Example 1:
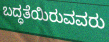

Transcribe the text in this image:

ಬದ್ಧತೆಯಿರುವವರು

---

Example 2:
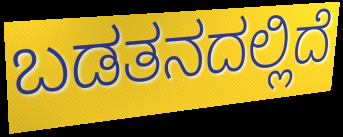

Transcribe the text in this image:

ಬಡತನದಲ್ಲಿದೆ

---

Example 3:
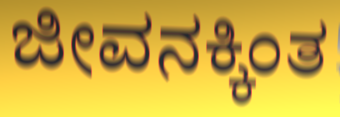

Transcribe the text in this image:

ಜೀವನಕ್ಕಿಂತ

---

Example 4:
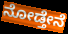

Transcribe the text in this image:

ನೋಡ್ತೇನೆ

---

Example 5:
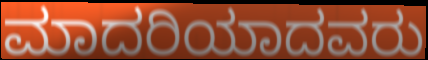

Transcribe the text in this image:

ಮಾದರಿಯಾದವರು